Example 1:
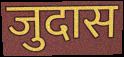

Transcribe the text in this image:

जुदास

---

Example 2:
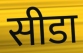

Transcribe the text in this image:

सीडा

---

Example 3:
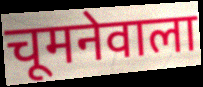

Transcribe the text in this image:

चूमनेवाला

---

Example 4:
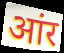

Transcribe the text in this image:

आंर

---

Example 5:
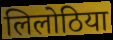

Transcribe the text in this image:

लिलोठिया